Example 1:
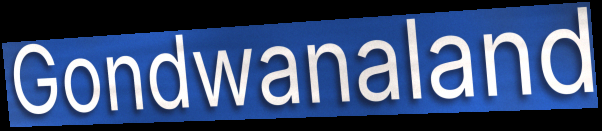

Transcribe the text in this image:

Gondwanaland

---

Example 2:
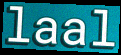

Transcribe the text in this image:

laal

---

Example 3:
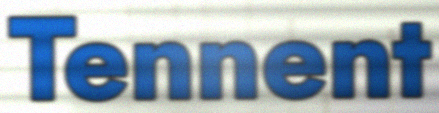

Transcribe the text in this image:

Tennent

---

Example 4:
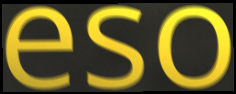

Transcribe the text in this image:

eso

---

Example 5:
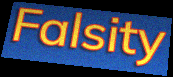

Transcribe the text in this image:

Falsity